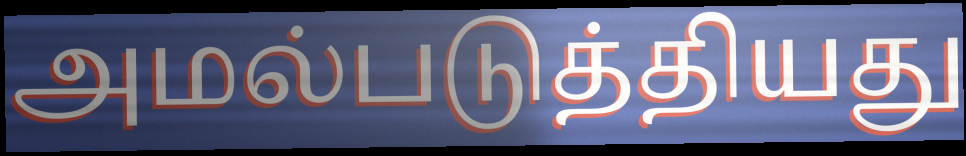
அமல்படுத்தியது